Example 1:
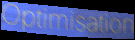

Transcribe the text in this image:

Optimisation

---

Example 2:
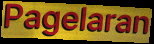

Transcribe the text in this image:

Pagelaran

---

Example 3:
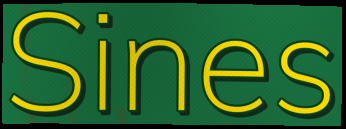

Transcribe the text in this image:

Sines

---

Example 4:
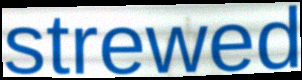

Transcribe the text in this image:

strewed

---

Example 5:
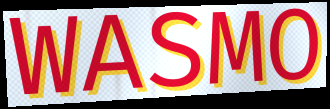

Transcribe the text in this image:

WASMO